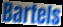
Bartels